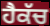
ਹੈਕੱਚ